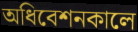
অধিবেশনকালে